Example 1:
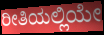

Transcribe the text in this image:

ರೀತಿಯಲ್ಲಿಯೇ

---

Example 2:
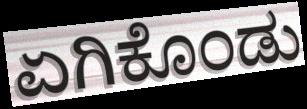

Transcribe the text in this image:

ಏಗಿಕೊಂಡು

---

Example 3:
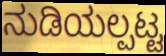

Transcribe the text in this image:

ನುಡಿಯಲ್ಪಟ್ಟ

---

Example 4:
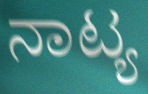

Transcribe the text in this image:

ನಾಟ್ಯ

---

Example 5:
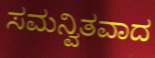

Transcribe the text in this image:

ಸಮನ್ವಿತವಾದ